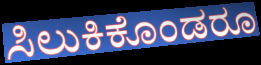
ಸಿಲುಕಿಕೊಂಡರೂ